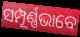
ସମ୍ପୂର୍ଣ୍ଣଭାବେ